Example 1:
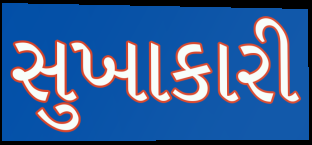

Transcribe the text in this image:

સુખાકારી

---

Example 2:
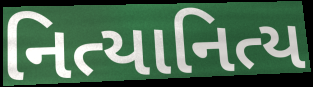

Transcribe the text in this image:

નિત્યાનિત્ય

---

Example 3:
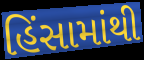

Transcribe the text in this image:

હિંસામાંથી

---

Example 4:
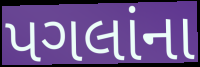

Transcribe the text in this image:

પગલાંના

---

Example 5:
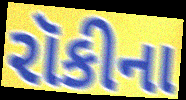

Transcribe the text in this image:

રૉકીના